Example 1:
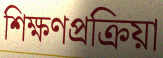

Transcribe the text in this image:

শিক্ষণপ্রক্রিয়া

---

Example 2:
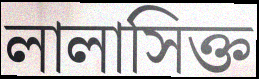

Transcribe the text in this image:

লালাসিক্ত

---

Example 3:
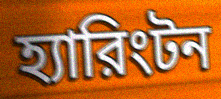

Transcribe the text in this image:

হ্যারিংটন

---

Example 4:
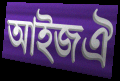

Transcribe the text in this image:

আইজঐ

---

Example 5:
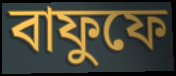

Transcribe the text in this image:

বাফুফে